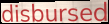
disbursed